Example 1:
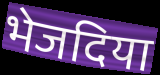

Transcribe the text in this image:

भेजदिया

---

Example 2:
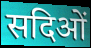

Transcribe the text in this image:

सदिओं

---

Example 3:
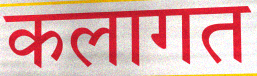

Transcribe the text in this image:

कलागत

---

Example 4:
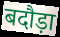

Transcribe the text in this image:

बदौड़ा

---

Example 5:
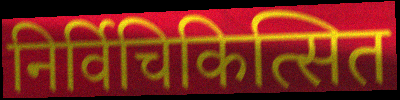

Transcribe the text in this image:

निर्विचिकित्सित